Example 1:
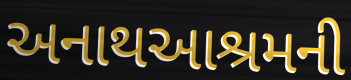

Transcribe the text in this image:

અનાથઆશ્રમની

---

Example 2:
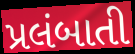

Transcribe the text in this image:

પ્રલંબાતી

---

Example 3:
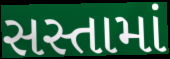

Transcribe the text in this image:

સસ્તામાં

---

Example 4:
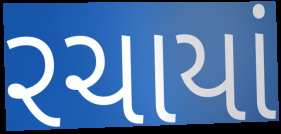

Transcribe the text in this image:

રચાયાં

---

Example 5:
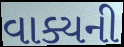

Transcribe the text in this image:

વાક્યની